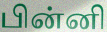
பின்னி